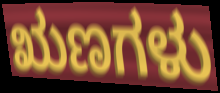
ಋಣಗಳು